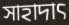
সাহাদাৎ